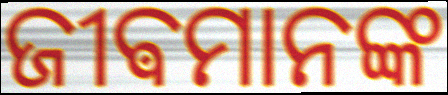
ଜୀଵମାନଙ୍କ